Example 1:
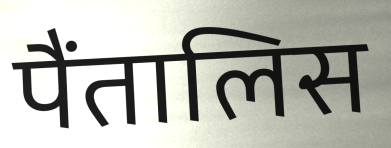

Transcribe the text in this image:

पैंतालिस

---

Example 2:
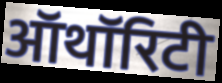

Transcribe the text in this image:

ऑथॉरिटी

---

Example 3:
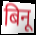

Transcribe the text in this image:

बिनू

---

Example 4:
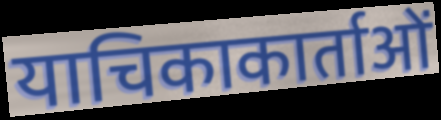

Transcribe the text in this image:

याचिकाकार्ताओं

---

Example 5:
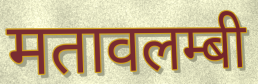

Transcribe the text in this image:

मतावलम्बी